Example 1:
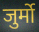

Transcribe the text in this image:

जुर्मो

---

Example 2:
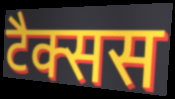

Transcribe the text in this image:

टैक्सस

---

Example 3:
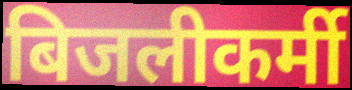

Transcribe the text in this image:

बिजलीकर्मी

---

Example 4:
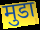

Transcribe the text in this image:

मुडा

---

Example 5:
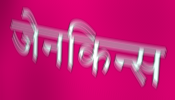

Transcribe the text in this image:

जेनकिन्स